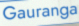
Gauranga